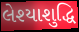
લેશ્યાશુદ્ધિ